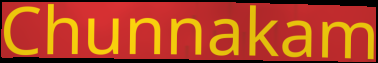
Chunnakam